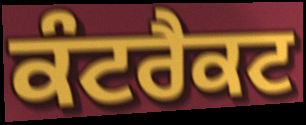
ਕੰਟਰੈਕਟ